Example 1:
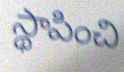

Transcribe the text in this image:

స్థాపించి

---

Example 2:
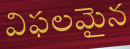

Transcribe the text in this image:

విఫలమైన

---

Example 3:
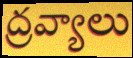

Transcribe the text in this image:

ద్రవ్యాలు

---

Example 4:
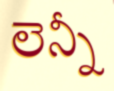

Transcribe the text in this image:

లెన్నీ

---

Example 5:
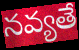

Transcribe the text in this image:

నవ్యతే